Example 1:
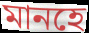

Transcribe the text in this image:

মানহে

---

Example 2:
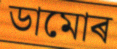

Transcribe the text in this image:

ডামোৰ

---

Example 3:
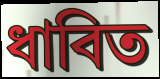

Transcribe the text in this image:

ধাবিত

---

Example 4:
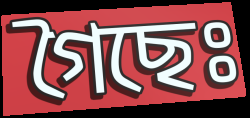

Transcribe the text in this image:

গৈছেঃ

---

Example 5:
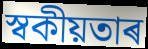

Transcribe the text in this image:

স্বকীয়তাৰ